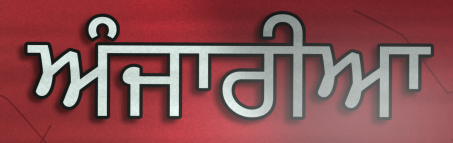
ਅੰਜਾਰੀਆ